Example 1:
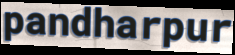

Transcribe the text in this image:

pandharpur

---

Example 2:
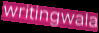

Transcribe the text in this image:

writingwala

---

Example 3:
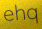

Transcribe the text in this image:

ehq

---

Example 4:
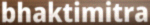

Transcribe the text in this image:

bhaktimitra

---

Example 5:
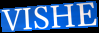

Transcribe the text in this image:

VISHE